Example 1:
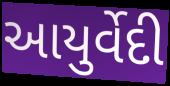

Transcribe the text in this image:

આયુર્વેદી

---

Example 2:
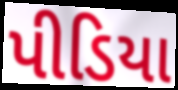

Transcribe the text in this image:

પીડિયા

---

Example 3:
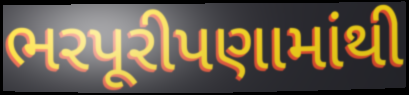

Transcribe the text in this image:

ભરપૂરીપણામાંથી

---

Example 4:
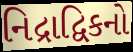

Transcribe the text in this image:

નિદ્રાદ્વિકનો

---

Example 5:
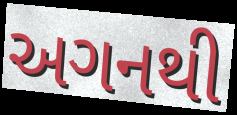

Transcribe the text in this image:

અગનથી